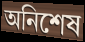
অনিশেষ